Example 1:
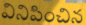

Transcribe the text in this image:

వినిపించిన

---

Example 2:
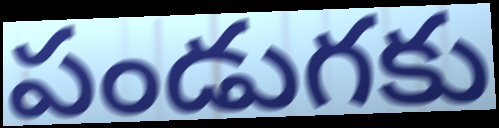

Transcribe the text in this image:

పండుగకు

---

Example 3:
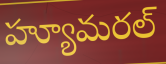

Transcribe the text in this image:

హ్యూమరల్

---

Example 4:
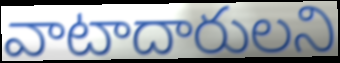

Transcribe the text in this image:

వాటాదారులని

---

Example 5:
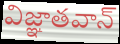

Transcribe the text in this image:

విజ్ఞాతవాన్